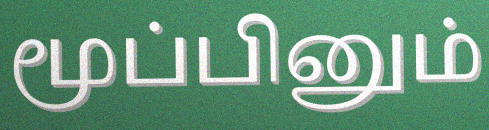
மூப்பினும்